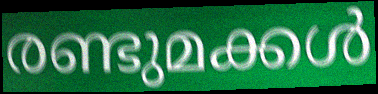
രണ്ടുമക്കൾ